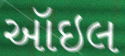
ઑઇલ